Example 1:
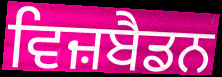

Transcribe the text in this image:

ਵਿਜ਼ਬੈਡਨ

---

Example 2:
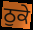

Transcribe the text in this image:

ਠੁਕੇ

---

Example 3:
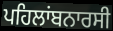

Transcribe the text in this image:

ਪਹਿਲਾਂਬਨਾਰਸੀ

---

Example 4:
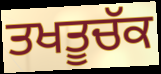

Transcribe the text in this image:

ਤਖਤੂਚੱਕ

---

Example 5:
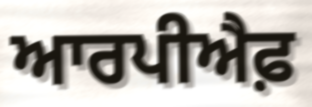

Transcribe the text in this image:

ਆਰਪੀਐਫ਼